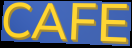
CAFE